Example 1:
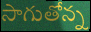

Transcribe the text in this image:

సాగుతోన్న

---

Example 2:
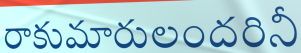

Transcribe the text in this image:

రాకుమారులందరినీ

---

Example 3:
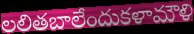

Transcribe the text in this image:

లలితబాలేందుకళామౌళి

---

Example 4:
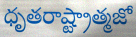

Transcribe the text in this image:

ధృతరాష్ట్రాత్మజో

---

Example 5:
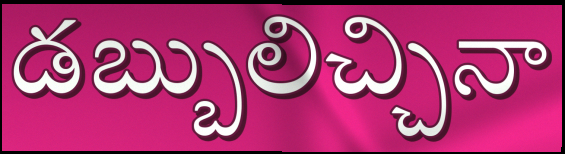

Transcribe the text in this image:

డబ్బులిచ్చినా